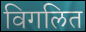
विगलित